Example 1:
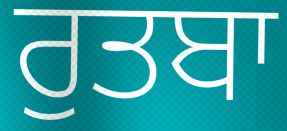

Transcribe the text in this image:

ਰੁਤਬਾ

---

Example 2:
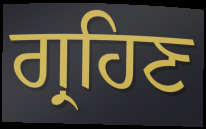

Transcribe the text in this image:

ਗ੍ਰਹਿਣ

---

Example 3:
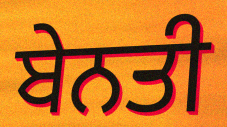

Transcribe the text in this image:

ਬੇਨਤੀ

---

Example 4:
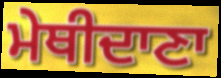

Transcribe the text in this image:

ਮੇਥੀਦਾਣਾ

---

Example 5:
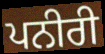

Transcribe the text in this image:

ਪਨੀਰੀ